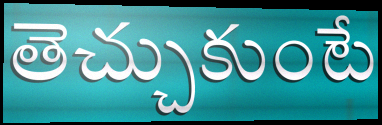
తెచ్చుకుంటే